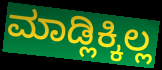
ಮಾಡ್ಲಿಕ್ಕಿಲ್ಲ